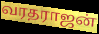
வரதராஜன்